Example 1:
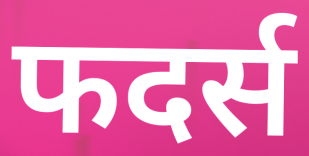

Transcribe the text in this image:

फदर्स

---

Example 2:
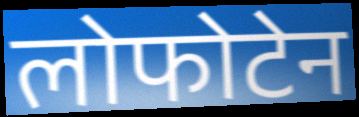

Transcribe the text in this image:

लोफोटेन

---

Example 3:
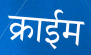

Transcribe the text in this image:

क्राईम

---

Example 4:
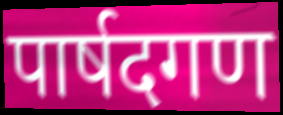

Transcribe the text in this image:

पार्षदगण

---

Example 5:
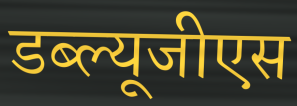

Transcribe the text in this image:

डब्ल्यूजीएस